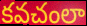
కవచంలా